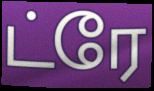
ட்ரே